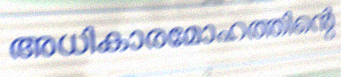
അധികാരമോഹത്തിന്റെ